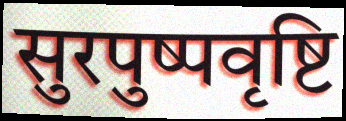
सुरपुष्पवृष्टि